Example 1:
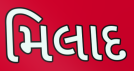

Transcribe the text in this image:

મિલાદ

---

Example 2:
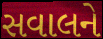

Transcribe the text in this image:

સવાલને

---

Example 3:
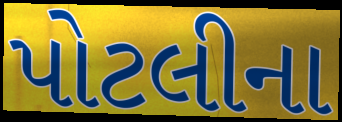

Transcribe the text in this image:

પોટલીના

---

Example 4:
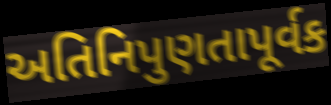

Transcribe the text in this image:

અતિનિપુણતાપૂર્વક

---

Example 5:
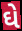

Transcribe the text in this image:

ઘે